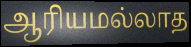
ஆரியமல்லாத